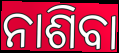
ନାଶିବା